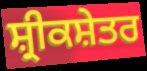
ਸ਼੍ਰੀਕਸ਼ੇਤਰ